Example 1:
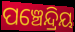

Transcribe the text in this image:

ପଞ୍ଚେନ୍ଦ୍ରିୟ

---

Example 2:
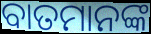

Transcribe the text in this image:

ବାତମାନଙ୍କ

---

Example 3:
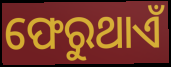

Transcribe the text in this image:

ଫେରୁଥାଏଁ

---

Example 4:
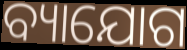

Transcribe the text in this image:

ବ୍ୟାଯୋଗ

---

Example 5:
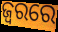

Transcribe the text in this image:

ଜ୍ବରରେ